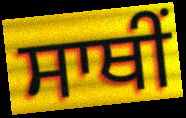
ਸਾਥੀਂ